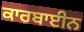
ਕਾਰਬਾਈਨ